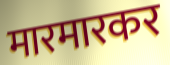
मारमारकर